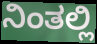
ನಿಂತಲ್ಲಿ